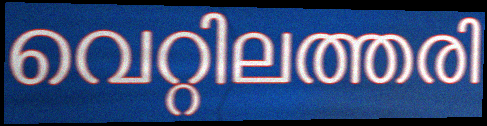
വെറ്റിലത്തരി